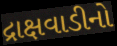
દ્રાક્ષવાડીનો